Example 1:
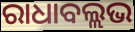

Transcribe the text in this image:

ରାଧାବଲ୍ଲଭ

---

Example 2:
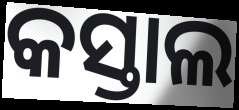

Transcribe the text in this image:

କସ୍ତାଲ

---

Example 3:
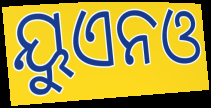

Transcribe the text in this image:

ୟୁଏନଓ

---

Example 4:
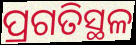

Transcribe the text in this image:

ପ୍ରଗତିସ୍ଥଳ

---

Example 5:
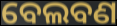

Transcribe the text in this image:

ବେଲବଣ